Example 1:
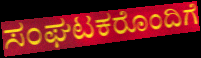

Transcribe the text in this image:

ಸಂಘಟಕರೊಂದಿಗೆ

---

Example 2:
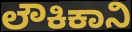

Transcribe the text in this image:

ಲೌಕಿಕಾನಿ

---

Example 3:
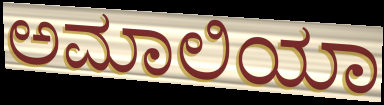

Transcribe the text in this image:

ಅಮಾಲಿಯಾ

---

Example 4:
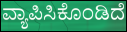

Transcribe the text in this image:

ವ್ಯಾಪಿಸಿಕೊಂಡಿದೆ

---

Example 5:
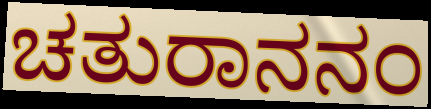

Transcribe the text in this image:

ಚತುರಾನನಂ